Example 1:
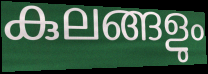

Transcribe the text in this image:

കുലങ്ങളും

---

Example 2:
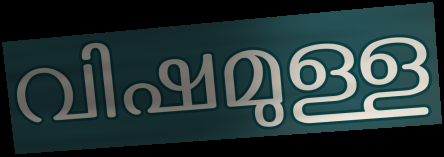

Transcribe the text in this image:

വിഷമുള്ള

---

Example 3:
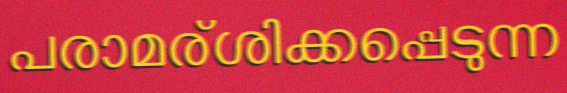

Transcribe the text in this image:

പരാമര്ശിക്കപ്പെടുന്ന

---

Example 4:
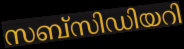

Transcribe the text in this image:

സബ്സിഡിയറി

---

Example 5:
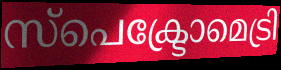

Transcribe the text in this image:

സ്പെക്ട്രോമെട്രി